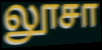
லூசா